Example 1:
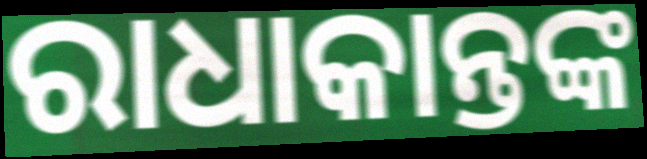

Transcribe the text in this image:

ରାଧାକାନ୍ତଙ୍କ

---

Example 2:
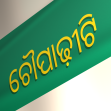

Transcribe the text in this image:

ଚୌପାଢ଼ୀଟି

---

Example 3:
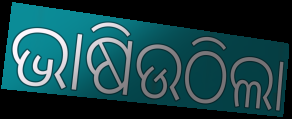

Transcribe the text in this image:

ଭାଷିଉଠିଲା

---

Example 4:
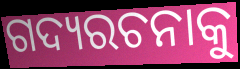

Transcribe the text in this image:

ଗଦ୍ୟରଚନାକୁ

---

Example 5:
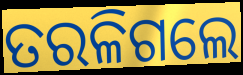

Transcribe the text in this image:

ତରଳିଗଲେ